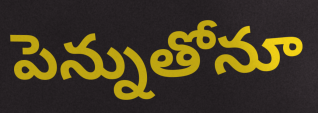
పెన్నుతోనూ